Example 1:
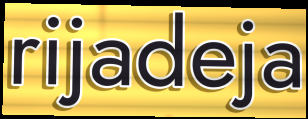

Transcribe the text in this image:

rijadeja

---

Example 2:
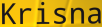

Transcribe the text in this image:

Krisna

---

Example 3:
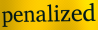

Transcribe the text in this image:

penalized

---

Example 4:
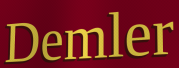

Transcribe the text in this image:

Demler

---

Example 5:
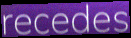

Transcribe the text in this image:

recedes